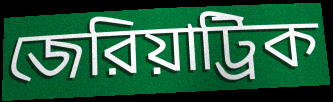
জেরিয়াট্রিক